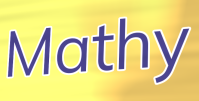
Mathy